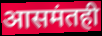
आसमंतही